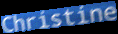
Christine